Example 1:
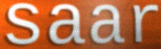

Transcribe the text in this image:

saar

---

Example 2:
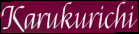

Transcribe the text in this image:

Karukurichi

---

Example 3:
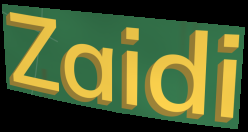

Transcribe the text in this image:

Zaidi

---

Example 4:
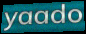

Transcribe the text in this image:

yaado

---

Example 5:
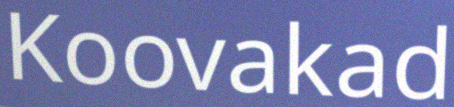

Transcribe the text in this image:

Koovakad